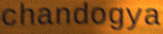
chandogya